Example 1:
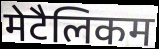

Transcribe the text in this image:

मेटैलिकम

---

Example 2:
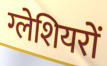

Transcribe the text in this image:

ग्‍लेशियरों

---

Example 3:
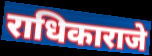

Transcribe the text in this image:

राधिकाराजे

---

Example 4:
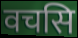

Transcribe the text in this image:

वचसि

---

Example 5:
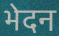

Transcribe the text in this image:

भेदन